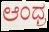
ಆಂಧ್ರ